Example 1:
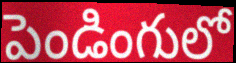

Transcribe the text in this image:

పెండింగులో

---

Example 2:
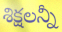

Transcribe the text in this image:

శిక్షలన్నీ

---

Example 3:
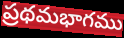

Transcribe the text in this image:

ప్రథమభాగము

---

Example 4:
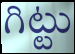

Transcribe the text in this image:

గిట్టు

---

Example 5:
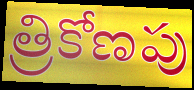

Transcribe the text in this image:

త్రికోణపు